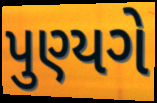
પુણ્યગે